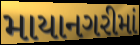
માયાનગરીમાં